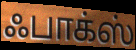
ஃபாக்ஸ்